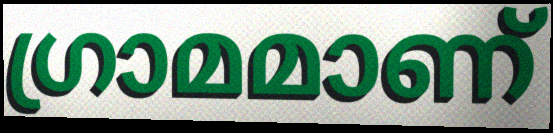
ഗ്രാമമാണ്